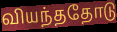
வியந்ததோடு